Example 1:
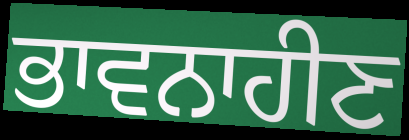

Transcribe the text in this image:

ਭਾਵਨਾਹੀਣ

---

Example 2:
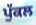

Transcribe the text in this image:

ਪੁੱਕਲ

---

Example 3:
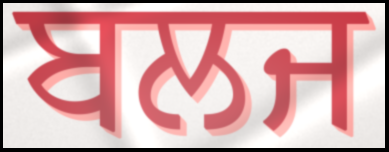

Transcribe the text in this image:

ਬਲਜ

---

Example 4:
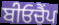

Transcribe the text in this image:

ਬੀਓਚੈਂਪ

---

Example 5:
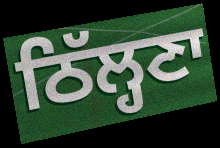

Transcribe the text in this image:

ਠਿੱਲ੍ਹਣਾ